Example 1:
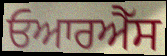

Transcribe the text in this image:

ਓਆਰਐੱਸ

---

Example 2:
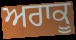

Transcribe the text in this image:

ਅਰਾਕੂ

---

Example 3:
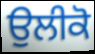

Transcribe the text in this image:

ਉਲੀਕੋ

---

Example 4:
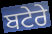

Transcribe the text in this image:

ਬਟੇਰੇ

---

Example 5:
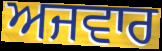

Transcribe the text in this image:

ਅਜਵਾਰ